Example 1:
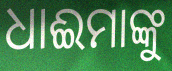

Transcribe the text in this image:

ଧାଈମାଙ୍କୁ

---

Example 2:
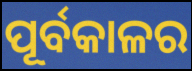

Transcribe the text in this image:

ପୂର୍ବକାଳର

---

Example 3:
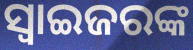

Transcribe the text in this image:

ସ୍ଵାଇଜରଙ୍କ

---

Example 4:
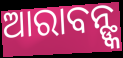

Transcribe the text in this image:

ଆରାବନ୍ଙ୍କ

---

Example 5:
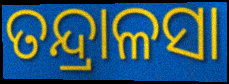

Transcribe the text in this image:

ତନ୍ଦ୍ରାଳସା